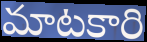
మాటకారి